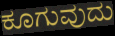
ಕೂಗುವುದು